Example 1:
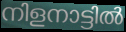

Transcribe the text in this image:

നിളനാട്ടിൽ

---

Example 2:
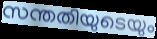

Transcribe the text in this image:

സന്തതിയുടെയും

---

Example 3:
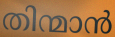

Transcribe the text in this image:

തിന്മാൻ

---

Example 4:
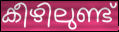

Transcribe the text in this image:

കീഴിലുണ്ട്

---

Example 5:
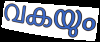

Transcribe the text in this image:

വകയും